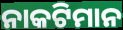
ନାକଟିମାନ